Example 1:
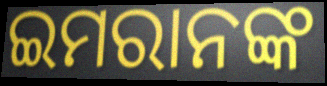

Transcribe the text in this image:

ଇମରାନଙ୍କ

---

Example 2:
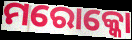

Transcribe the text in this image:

ମରୋକ୍କୋ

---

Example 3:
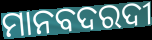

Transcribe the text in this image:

ମାନବଦରଦୀ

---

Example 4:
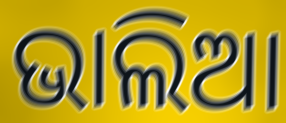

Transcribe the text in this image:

ଭାଲିଆ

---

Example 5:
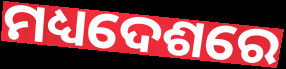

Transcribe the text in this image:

ମଧ୍ୟଦେଶରେ